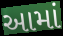
આમાં